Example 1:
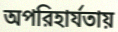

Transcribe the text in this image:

অপরিহার্যতায়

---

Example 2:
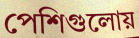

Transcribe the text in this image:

পেশিগুলোয়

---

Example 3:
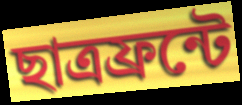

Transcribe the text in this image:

ছাত্রফ্রন্টে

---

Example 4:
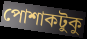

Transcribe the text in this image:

পোশাকটুকু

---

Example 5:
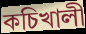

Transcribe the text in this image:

কচিখালী